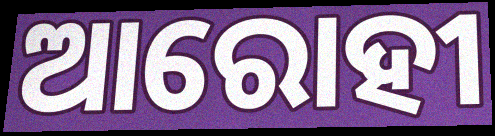
ଆରୋହୀ